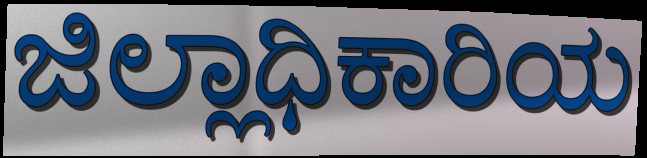
ಜಿಲ್ಲಾಧಿಕಾರಿಯ